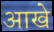
आखे